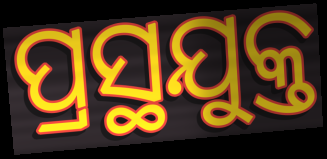
ପ୍ରସ୍ଥଯୁକ୍ତ